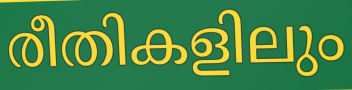
രീതികളിലും